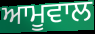
ਆਮੂਵਾਲ